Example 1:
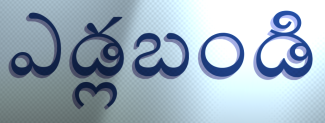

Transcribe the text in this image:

ఎడ్లబండి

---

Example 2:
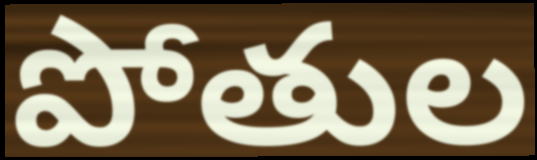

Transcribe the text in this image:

పోతుల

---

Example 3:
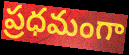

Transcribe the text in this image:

ప్రధమంగా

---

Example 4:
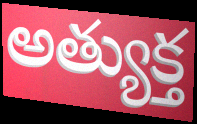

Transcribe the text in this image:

అత్యుక్త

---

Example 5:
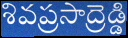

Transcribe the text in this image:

శివప్రసాద్రెడ్డి